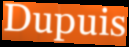
Dupuis